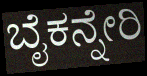
ಬೈಕನ್ನೇರಿ